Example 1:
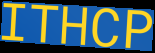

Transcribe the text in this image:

ITHCP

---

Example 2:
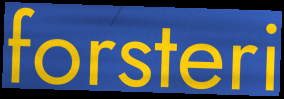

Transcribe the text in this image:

forsteri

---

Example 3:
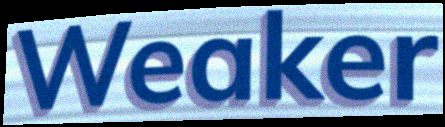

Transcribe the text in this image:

Weaker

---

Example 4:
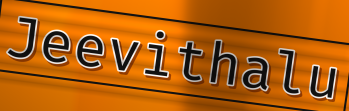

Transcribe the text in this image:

Jeevithalu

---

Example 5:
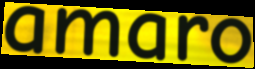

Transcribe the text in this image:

amaro